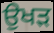
ਉਖੜ